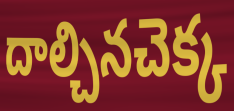
దాల్చినచెక్క